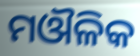
ମଔଳିକ